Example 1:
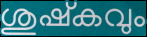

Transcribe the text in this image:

ശുഷ്കവും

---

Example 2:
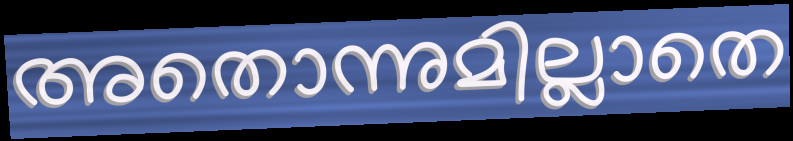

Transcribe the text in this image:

അതൊന്നുമില്ലാതെ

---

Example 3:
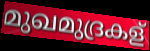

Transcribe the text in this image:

മുഖമുദ്രകള്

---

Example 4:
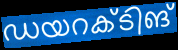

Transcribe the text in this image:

ഡയറക്ടിങ്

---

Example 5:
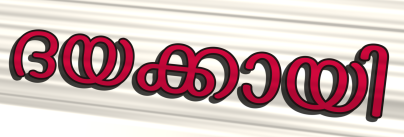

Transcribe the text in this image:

ദയക്കായി